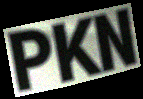
PKN